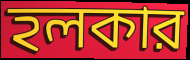
হলকার